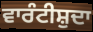
ਵਾਰੰਟੀਸ਼ੁਦਾ